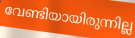
വേണ്ടിയായിരുന്നില്ല